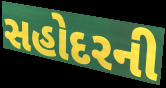
સહોદરની